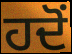
ਹਦੋਂ